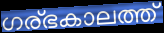
ഗര്ഭകാലത്ത്